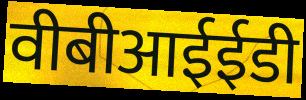
वीबीआईईडी